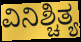
ವಿನಿಶ್ಚಿತ್ಯ